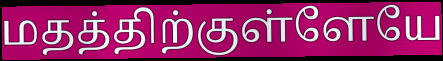
மதத்திற்குள்ளேயே